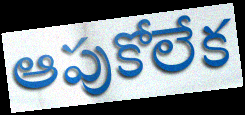
ఆపుకోలేక